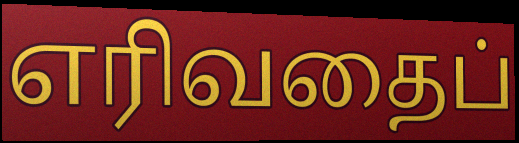
எரிவதைப்